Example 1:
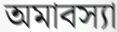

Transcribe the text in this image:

অমাবস্যা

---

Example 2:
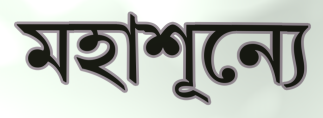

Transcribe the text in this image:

মহাশূন্যে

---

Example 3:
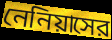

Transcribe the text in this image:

নেনিয়াসের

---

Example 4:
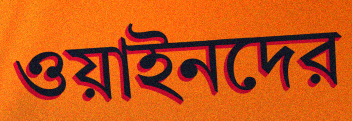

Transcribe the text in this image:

ওয়াইনদের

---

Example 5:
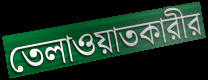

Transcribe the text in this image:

তেলাওয়াতকারীর